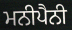
ਮਨੀਪੈਨੀ